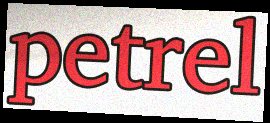
petrel